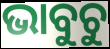
ଭାବୁଚୁ